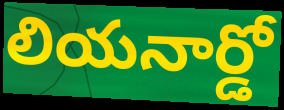
లియనార్డో